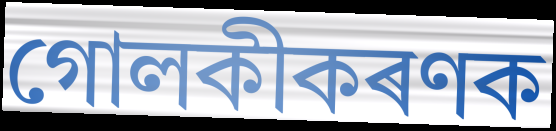
গোলকীকৰণক